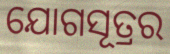
ଯୋଗସୂତ୍ରର